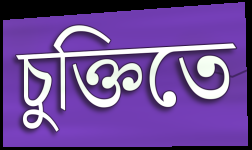
চুক্তিতে